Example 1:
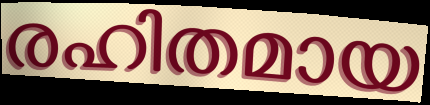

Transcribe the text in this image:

രഹിതമായ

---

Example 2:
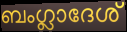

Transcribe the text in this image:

ബംഗ്ലാദേശ്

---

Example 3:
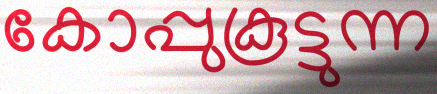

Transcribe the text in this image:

കോപ്പുകൂട്ടുന്ന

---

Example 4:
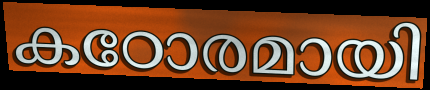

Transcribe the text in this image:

കഠോരമായി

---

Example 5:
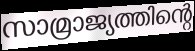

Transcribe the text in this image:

സാമ്രാജ്യത്തിന്റെ